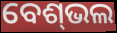
ବେଶ୍‌ଭଲ